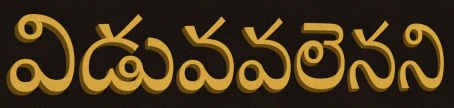
విడువవలెనని